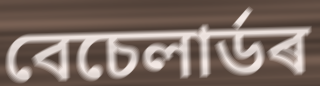
বেচেলাৰ্ডৰ